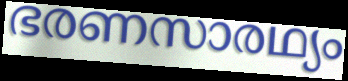
ഭരണസാരഥ്യം